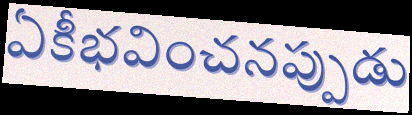
ఏకీభవించనప్పుడు